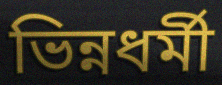
ভিন্নধৰ্মী